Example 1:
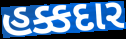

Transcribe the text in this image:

હક્કદાર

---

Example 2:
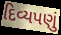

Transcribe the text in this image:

દિવ્યપણું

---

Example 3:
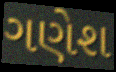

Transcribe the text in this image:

ગણેશ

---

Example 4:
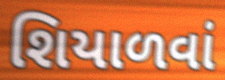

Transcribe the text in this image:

શિયાળવાં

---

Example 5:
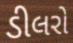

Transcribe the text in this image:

ડીલરો